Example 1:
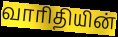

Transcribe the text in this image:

வாரிதியின்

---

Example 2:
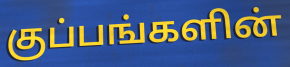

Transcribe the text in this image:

குப்பங்களின்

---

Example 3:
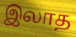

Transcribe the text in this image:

இலாத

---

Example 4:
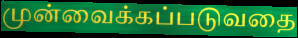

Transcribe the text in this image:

முன்வைக்கப்படுவதை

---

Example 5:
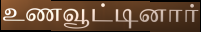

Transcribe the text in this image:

உணவூட்டினார்